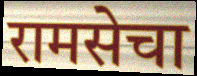
रामसेचा